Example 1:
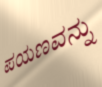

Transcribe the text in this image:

ಪಯಣವನ್ನು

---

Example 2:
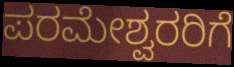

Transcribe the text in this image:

ಪರಮೇಶ್ವರರಿಗೆ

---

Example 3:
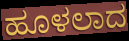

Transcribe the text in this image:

ಹೂಳಲಾದ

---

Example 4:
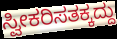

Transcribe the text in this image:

ಸ್ವೀಕರಿಸತಕ್ಕದ್ದು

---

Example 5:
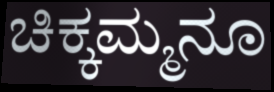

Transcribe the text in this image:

ಚಿಕ್ಕಮ್ಮನೂ